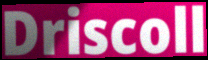
Driscoll